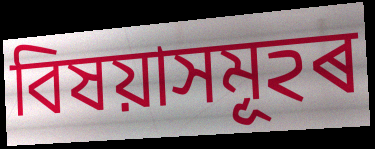
বিষয়াসমূহৰ